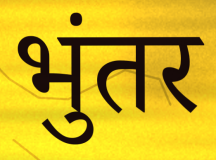
भुंतर